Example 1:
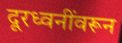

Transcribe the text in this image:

दूरध्वनींवरून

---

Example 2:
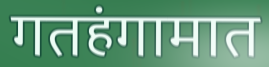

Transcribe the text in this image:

गतहंगामात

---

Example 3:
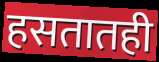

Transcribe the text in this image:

हसतातही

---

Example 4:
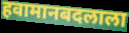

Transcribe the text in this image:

हवामानबदलाला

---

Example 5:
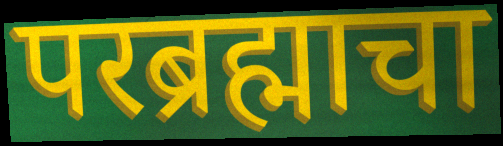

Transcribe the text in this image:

परब्रह्माचा